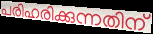
പരിഹരിക്കുന്നതിന്